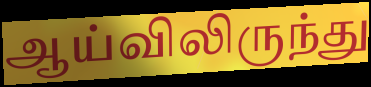
ஆய்விலிருந்து